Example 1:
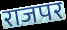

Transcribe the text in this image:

राजपर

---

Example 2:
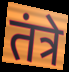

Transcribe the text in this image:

तंत्रे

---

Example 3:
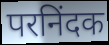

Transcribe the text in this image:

परनिंदक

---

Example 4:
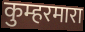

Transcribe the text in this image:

कुम्हरमारा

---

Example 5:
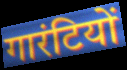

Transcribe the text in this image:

गारंटियों